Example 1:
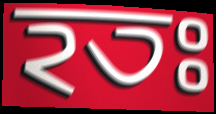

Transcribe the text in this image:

হতঃ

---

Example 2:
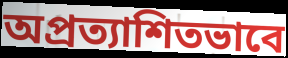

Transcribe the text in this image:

অপ্রত্যাশিতভাবে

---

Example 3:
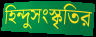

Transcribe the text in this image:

হিন্দুসংস্কৃতির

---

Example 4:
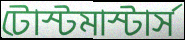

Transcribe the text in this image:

টোস্টমাস্টার্স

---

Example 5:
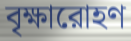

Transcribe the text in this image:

বৃক্ষারোহণ